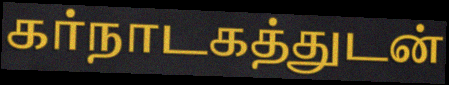
கர்நாடகத்துடன்